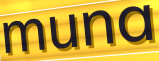
muna